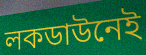
লকডাউনেই